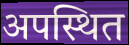
अपस्थित